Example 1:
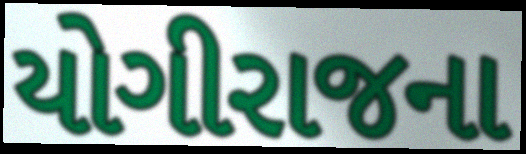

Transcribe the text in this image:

યોગીરાજના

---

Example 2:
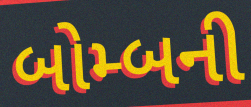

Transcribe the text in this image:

બોમ્બની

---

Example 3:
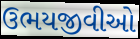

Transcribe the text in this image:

ઉભયજીવીઓ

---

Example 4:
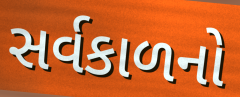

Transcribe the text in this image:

સર્વકાળનો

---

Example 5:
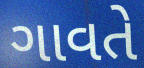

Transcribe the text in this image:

ગાવતે